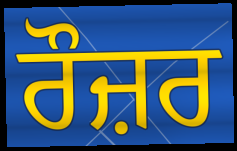
ਰੌਜ਼ਰ